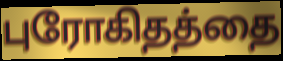
புரோகிதத்தை